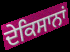
ਦੇਕਿਸਾਨਾਂ